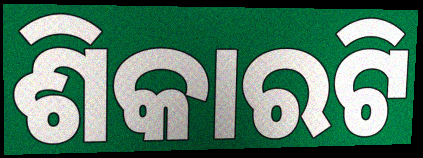
ଶିକାରଟି